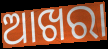
ଆଖରା